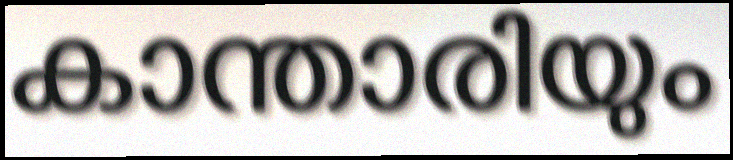
കാന്താരിയും